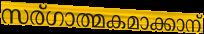
സര്ഗാത്മകമാക്കാന്